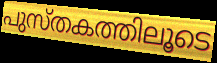
പുസ്തകത്തിലൂടെ